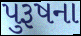
પુરૂષના